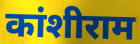
कांशीराम